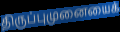
திருப்புமுனையைக்